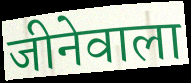
जीनेवाला